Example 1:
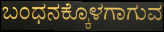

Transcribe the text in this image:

ಬಂಧನಕ್ಕೊಳಗಾಗುವ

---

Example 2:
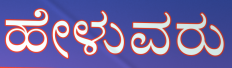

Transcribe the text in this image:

ಹೇಳುವರು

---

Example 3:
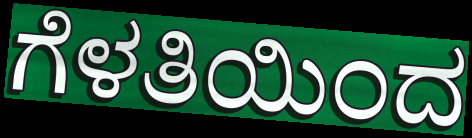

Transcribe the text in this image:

ಗೆಳತಿಯಿಂದ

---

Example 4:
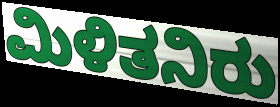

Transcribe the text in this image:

ಮಿಳಿತನಿರು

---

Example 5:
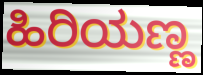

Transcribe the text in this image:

ಹಿರಿಯಣ್ಣ